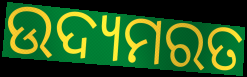
ଉଦ୍ୟମରତ